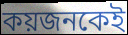
কয়জনকেই